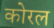
कोरल